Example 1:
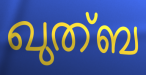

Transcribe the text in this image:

ഖുത്ബ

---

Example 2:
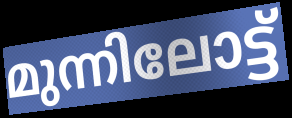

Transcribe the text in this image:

മുന്നിലോട്ട്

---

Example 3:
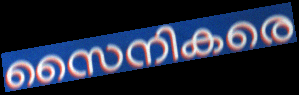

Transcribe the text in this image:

സൈനികരെ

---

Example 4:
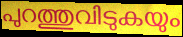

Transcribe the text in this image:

പുറത്തുവിടുകയും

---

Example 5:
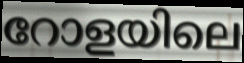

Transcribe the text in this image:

റോളയിലെ